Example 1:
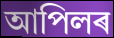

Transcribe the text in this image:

আপিলৰ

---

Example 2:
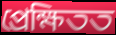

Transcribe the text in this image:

প্ৰেক্ষিতত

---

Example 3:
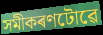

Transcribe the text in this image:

সমীকৰণটোৱে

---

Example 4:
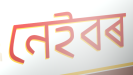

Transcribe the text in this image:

নেইবৰ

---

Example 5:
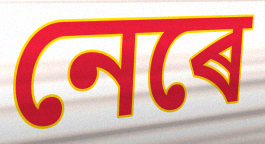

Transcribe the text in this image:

নেৰে